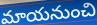
మాయనుంచి